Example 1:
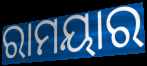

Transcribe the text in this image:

ରାମୟାର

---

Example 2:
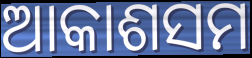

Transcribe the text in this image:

ଆକାଶସମ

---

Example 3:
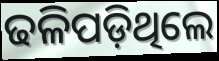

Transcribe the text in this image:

ଢଳିପଡ଼ିଥିଲେ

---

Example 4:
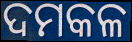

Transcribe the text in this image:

ଦମକଳ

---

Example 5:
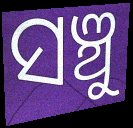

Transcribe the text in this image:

ସଞ୍ଚୁ